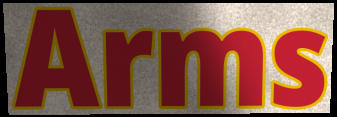
Arms